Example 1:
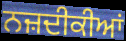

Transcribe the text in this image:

ਨਜ਼ਦੀਕੀਆਂ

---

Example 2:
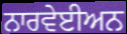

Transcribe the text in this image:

ਨਾਰਵੇਈਅਨ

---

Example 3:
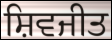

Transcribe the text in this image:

ਸ਼ਿਵਜੀਤ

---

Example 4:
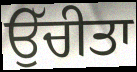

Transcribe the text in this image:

ਉੱਚੀਤਾ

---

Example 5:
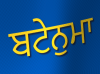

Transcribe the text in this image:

ਬਟੇਨੁਮਾ